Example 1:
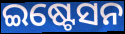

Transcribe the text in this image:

ଇଷ୍ଟେସନ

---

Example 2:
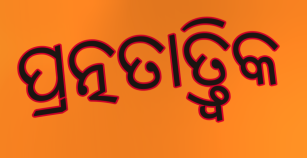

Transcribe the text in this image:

ପ୍ରତ୍ନତାତ୍ତ୍ଵିକ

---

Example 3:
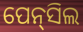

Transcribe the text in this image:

ପେନ୍‌ସିଲ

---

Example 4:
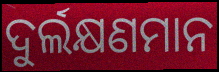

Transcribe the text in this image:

ଦୁର୍ଲକ୍ଷଣମାନ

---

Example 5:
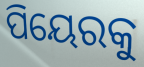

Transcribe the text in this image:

ପିୟେରକୁ